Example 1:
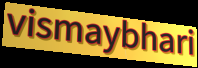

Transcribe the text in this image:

vismaybhari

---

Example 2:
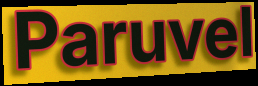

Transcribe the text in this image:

Paruvel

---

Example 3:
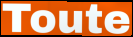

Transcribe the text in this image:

Toute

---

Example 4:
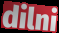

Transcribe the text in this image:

dilni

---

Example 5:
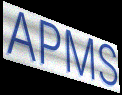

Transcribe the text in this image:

APMS